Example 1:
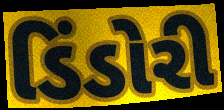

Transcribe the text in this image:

ડિંડોરી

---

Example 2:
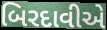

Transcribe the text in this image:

બિરદાવીએ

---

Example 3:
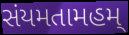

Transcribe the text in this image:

સંયમતામહમ્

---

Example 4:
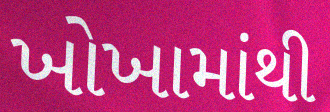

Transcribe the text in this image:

ખોખામાંથી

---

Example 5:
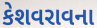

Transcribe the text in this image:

કેશવરાવના